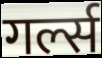
गर्ल्स